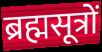
ब्रह्मसूत्रों